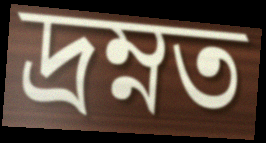
দ্রম্নত